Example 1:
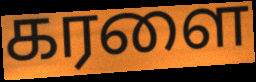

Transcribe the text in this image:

கரளை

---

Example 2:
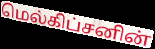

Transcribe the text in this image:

மெல்கிப்சனின்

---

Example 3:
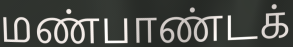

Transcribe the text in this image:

மண்பாண்டக்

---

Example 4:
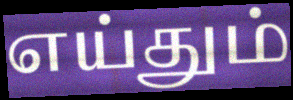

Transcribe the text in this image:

எய்தும்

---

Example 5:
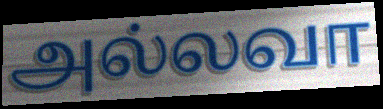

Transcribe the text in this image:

அல்லவா